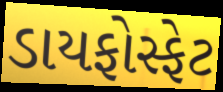
ડાયફોસ્ફેટ